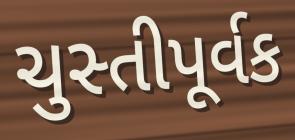
ચુસ્તીપૂર્વક